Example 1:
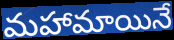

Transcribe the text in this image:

మహామాయినే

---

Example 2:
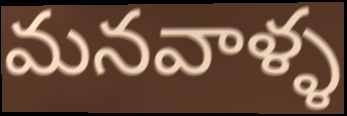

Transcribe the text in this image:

మనవాళ్ళ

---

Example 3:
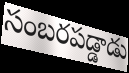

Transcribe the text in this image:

సంబరపడ్డాడు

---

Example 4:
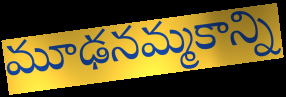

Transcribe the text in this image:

మూఢనమ్మకాన్ని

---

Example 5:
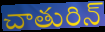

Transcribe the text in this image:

చాతురిన్